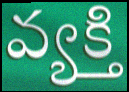
వ్యక్తి